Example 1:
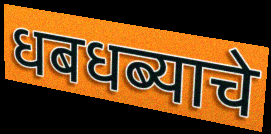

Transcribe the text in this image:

धबधब्याचे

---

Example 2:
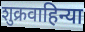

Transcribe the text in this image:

शुक्रवाहिन्या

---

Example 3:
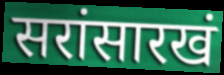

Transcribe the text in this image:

सरांसारखं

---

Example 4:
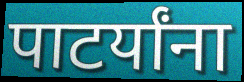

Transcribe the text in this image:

पाटर्यांना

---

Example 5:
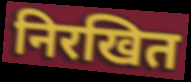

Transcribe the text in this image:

निरखित